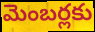
మెంబర్లకు